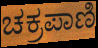
ಚಕ್ರಪಾಣಿ